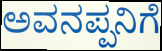
ಅವನಪ್ಪನಿಗೆ